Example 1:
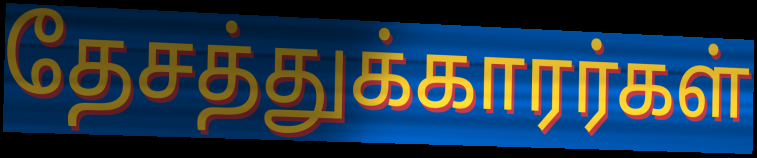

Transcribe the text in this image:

தேசத்துக்காரர்கள்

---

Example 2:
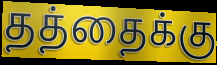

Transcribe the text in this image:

தத்தைக்கு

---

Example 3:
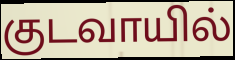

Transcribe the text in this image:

குடவாயில்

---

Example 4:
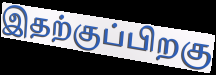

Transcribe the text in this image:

இதற்குப்பிறகு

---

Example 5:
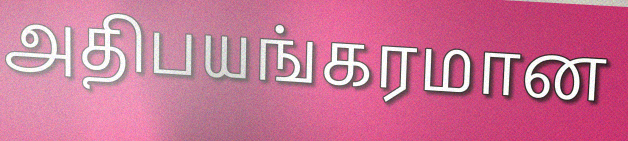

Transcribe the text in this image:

அதிபயங்கரமான